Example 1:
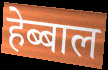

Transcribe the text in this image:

हेब्बाल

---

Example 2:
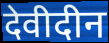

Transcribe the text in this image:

देवीदीन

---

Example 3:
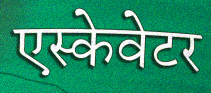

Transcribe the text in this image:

एस्केवेटर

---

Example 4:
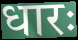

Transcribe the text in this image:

धारः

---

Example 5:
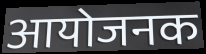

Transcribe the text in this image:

आयोजनक